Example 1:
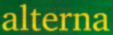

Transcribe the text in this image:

alterna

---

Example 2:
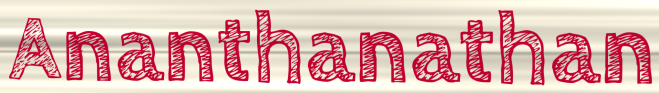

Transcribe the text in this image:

Ananthanathan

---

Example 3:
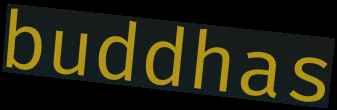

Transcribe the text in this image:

buddhas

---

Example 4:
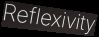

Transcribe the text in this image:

Reflexivity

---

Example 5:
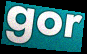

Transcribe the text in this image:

gor